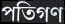
পতিগণ